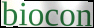
biocon